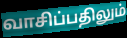
வாசிப்பதிலும்